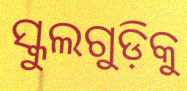
ସ୍କୁଲଗୁଡ଼ିକୁ